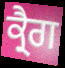
ਕ੍ਰੈਗ